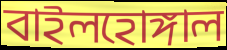
বাইলহোঙ্গাল